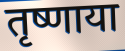
तृष्णाया